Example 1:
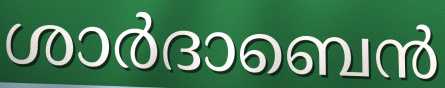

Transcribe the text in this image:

ശാർദാബെൻ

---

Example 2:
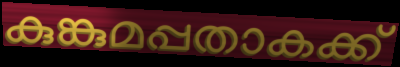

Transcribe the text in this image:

കുങ്കുമപ്പതാകക്ക്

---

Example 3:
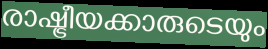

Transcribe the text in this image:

രാഷ്ട്രീയക്കാരുടെയും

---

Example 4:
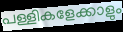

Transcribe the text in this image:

പള്ളികളേക്കാളും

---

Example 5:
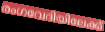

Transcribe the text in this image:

രംഗവേദിയിലേക്ക്